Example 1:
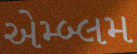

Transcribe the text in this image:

એમ્બ્લમ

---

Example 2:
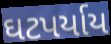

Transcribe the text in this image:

ઘટપર્યાય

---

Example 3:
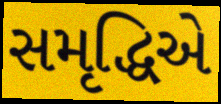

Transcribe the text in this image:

સમૃદ્ધિએ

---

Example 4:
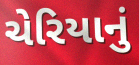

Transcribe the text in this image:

ચેરિયાનું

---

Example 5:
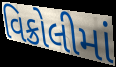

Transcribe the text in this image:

વિક્રોલીમાં